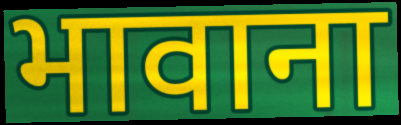
भावाना